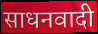
साधनवादी